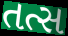
તત્સ